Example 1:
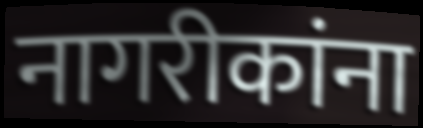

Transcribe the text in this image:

नागरीकांना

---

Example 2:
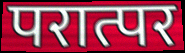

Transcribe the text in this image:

परात्पर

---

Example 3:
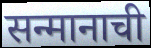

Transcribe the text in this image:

सन्मानाची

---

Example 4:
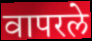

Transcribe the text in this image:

वापरले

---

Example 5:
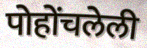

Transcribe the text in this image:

पोहोंचलेली